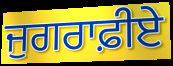
ਜੁਗਰਾਫ਼ੀਏ